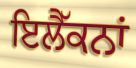
ਇਲੈੱਕਨਾਂ